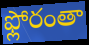
ఫ్లోరంతా